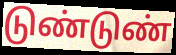
டுண்டுண்